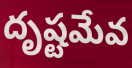
దృష్టమేవ